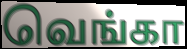
வெங்கா